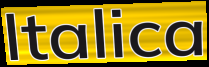
Italica